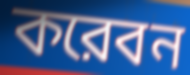
করেবন